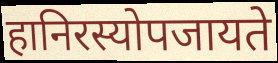
हानिरस्योपजायते